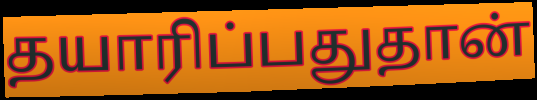
தயாரிப்பதுதான்